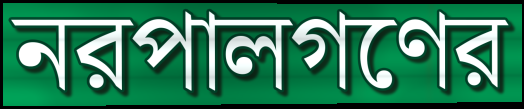
নরপালগণের